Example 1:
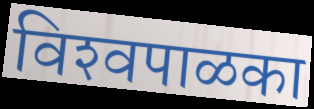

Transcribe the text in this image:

विश्वपाळका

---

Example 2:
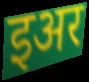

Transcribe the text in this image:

इअर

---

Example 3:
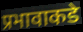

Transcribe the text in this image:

प्रभावाकडे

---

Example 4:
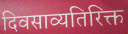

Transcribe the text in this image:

दिवसाव्यतिरिक्त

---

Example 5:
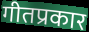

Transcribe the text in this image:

गीतप्रकार